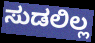
ಸುಡಲಿಲ್ಲ